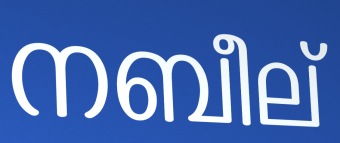
നബീല്